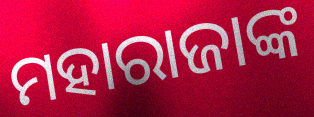
ମହାରାଜାଙ୍କ